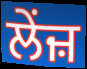
ਲੇਂਜ਼